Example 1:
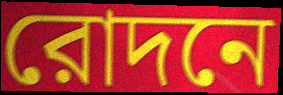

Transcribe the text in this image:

রোদনে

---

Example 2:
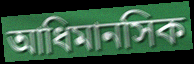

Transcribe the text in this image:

আধিমানসিক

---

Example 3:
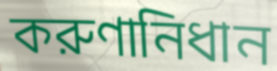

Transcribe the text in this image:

করুণানিধান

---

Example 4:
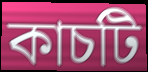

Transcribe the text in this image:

কাচটি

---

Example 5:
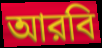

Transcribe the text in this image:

আরবি